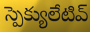
స్పెక్యులేటివ్